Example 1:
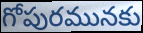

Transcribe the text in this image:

గోపురమునకు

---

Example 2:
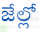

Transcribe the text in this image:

జేల్లో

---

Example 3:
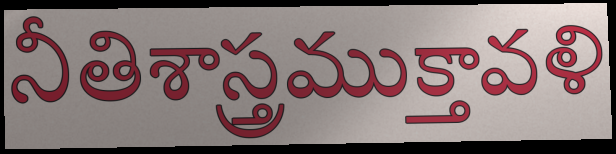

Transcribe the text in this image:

నీతిశాస్త్రముక్తావళి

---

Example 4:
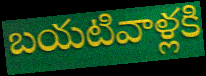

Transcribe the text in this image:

బయటివాళ్లకి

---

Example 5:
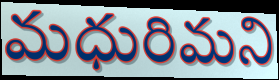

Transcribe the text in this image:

మధురిమని